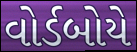
વોર્ડબોયે